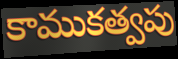
కాముకత్వపు